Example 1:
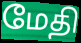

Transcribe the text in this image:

மேதி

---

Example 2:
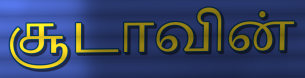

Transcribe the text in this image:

சூடாவின்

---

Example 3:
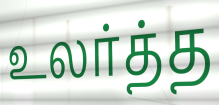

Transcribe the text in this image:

உலர்த்த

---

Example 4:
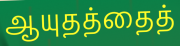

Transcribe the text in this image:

ஆயுதத்தைத்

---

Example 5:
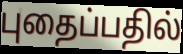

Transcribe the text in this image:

புதைப்பதில்